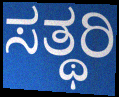
ಸತ್ಥರಿ